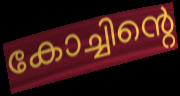
കോച്ചിന്റെ